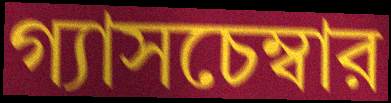
গ্যাসচেম্বার